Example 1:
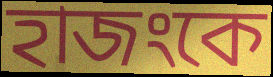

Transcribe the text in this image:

হাজংকে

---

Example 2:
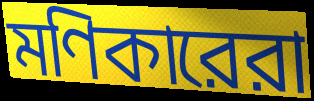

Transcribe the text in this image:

মণিকারেরা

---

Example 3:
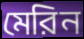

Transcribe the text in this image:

মেরিন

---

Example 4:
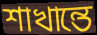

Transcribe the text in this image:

শাখান্তে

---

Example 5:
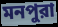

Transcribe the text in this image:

মনপুরা